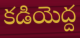
కడియెద్ద